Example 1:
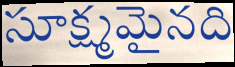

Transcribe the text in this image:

సూక్ష్మమైనది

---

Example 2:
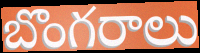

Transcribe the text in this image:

బొంగరాలు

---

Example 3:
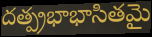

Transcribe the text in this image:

దత్ప్రభాభాసితమై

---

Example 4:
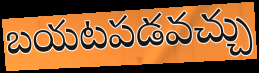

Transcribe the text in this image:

బయటపడవచ్చు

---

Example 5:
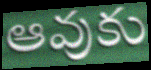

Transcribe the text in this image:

ఆవుకు